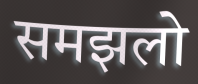
समझलो